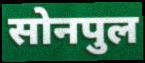
सोनपुल